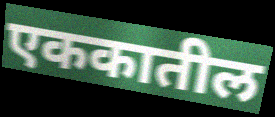
एककातील